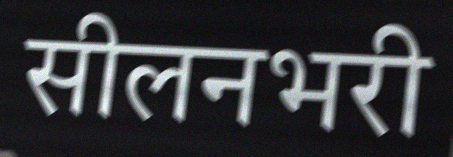
सीलनभरी